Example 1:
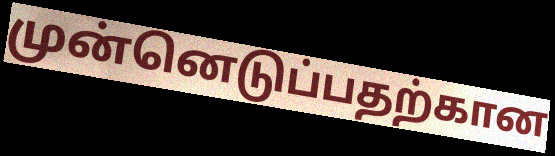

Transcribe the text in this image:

முன்னெடுப்பதற்கான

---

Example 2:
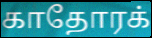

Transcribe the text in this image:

காதோரக்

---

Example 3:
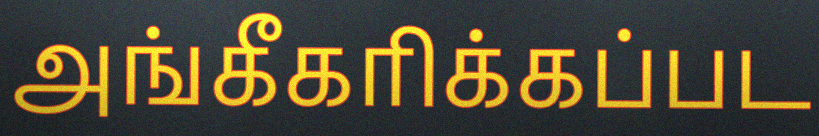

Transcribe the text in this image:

அங்கீகரிக்கப்பட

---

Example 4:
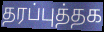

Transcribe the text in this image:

தரப்புத்தக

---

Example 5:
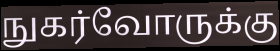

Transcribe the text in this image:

நுகர்வோருக்கு